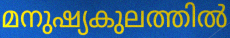
മനുഷ്യകുലത്തിൽ